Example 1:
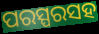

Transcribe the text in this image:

ପରସ୍ପରସହ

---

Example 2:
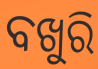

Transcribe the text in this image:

ବଖୁରି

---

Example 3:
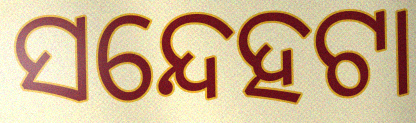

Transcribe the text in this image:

ସନ୍ଦେହଟା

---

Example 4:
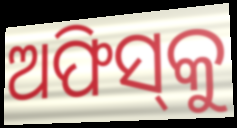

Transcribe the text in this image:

ଅଫିସ୍‌କୁ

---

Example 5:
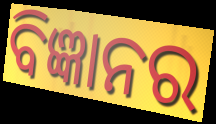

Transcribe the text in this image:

ବିଜ୍ଞାନର